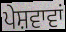
ਪੇਸ਼ਵਾਵਾਂ